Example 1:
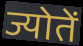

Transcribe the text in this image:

ज्योतें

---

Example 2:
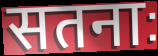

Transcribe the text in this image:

सतनाः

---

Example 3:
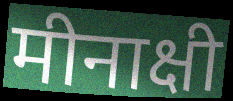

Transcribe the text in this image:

मीनाक्षी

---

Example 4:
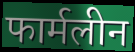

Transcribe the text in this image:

फार्मलीन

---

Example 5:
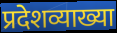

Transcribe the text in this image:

प्रदेशव्याख्या